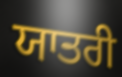
ਯਾਤਰੀ